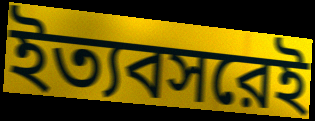
ইত্যবসরেই